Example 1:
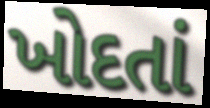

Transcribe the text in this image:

ખોદતાં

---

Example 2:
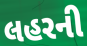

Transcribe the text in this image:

લહરની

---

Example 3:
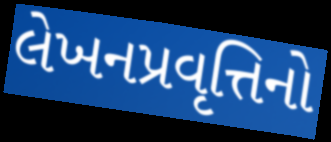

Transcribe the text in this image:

લેખનપ્રવૃત્તિનો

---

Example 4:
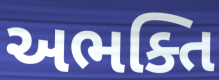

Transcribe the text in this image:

અભક્તિ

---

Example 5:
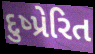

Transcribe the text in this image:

દુષ્પ્રેરિત